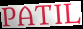
PATIL